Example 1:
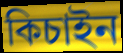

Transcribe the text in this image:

কিচাইন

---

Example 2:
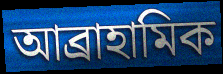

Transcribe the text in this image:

আব্রাহামিক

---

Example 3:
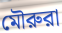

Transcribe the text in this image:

মৌরুরা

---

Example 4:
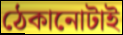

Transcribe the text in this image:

ঠেকানোটাই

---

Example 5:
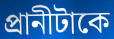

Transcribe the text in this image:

প্রানীটাকে